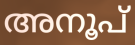
അനൂപ്